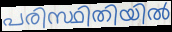
പരിസ്ഥിതിയിൽ